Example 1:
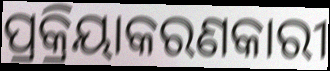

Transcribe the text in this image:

ପ୍ରକ୍ରିୟାକରଣକାରୀ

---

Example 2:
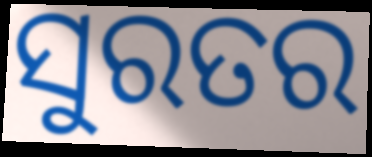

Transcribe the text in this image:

ସୁରତର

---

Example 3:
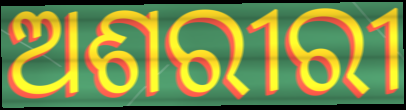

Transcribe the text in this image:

ଅଶରୀରୀ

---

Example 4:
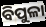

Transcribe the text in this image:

ବିପୁଳା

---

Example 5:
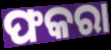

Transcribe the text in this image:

ଫକରା